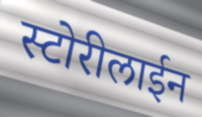
स्टोरीलाईन